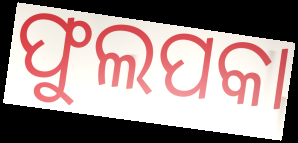
ଫୁଲପକା